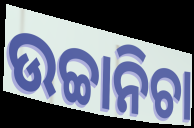
ଉଚ୍ଚାନିଚା